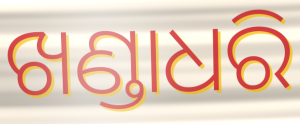
ଖଣ୍ଡାଧରି